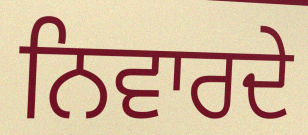
ਨਿਵਾਰਦੇ